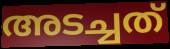
അടച്ചത്